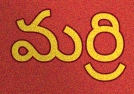
మర్రి